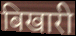
बिखारी